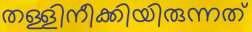
തള്ളിനീക്കിയിരുന്നത്